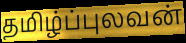
தமிழ்ப்புலவன்